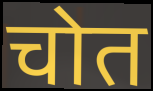
चोत